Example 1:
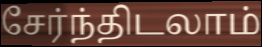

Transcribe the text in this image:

சேர்ந்திடலாம்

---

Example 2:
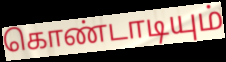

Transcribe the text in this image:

கொண்டாடியும்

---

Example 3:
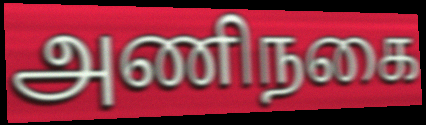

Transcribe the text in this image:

அணிநகை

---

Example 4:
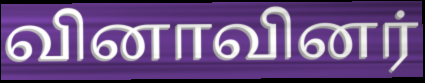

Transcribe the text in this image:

வினாவினர்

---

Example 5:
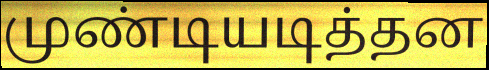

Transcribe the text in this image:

முண்டியடித்தன